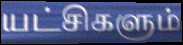
யட்சிகளும்